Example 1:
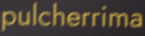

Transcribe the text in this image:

pulcherrima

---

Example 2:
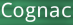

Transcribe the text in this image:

Cognac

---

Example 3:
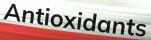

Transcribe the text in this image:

Antioxidants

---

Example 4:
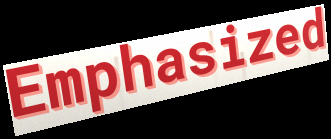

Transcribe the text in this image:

Emphasized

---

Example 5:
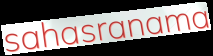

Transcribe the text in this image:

sahasranama